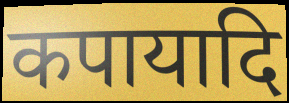
कपायादि